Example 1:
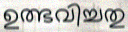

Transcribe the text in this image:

ഉത്ഭവിച്ചതു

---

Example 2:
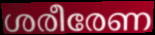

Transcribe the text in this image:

ശരീരേണ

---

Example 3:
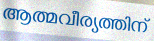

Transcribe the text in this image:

ആത്മവീര്യത്തിന്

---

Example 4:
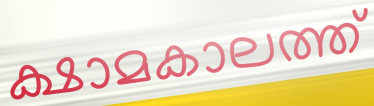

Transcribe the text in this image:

ക്ഷാമകാലത്ത്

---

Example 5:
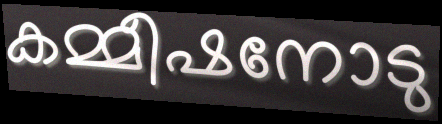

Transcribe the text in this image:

കമ്മീഷനോടു